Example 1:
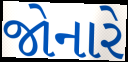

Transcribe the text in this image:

જોનારે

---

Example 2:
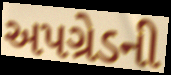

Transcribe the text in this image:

અપગ્રેડની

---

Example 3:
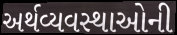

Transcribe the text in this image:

અર્થવ્યવસ્થાઓની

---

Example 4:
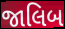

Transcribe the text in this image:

જાલિબ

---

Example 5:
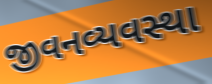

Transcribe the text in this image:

જીવનવ્યવસ્થા